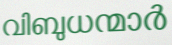
വിബുധന്മാർ